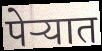
पेऱ्यात